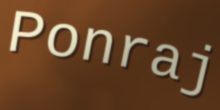
Ponraj